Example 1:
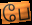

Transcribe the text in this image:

பே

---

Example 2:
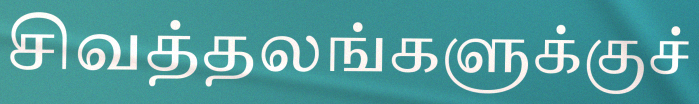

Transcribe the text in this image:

சிவத்தலங்களுக்குச்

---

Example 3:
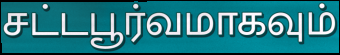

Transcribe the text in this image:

சட்டபூர்வமாகவும்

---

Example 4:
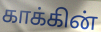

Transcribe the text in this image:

காக்கின்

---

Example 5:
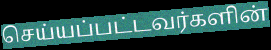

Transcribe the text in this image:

செய்யப்பட்டவர்களின்